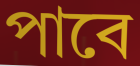
পাবে